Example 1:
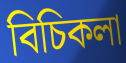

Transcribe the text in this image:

বিচিকলা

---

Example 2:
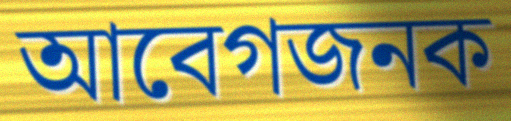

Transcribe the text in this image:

আবেগজনক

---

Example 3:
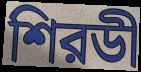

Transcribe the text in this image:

শিরডী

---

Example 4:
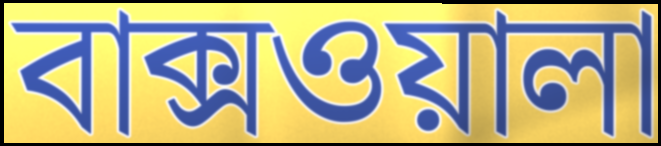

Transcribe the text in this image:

বাক্সওয়ালা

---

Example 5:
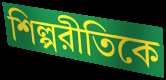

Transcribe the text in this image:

শিল্পরীতিকে